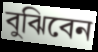
বুঝিবেন